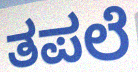
ತಪಲೆ